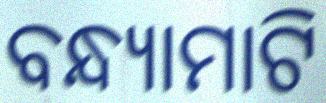
ବନ୍ଧ୍ୟାମାଟି